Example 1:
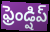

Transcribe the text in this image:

ఫ్రెండ్షిప్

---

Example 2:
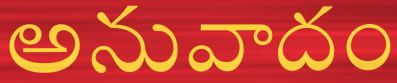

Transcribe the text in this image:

అనువాదం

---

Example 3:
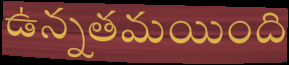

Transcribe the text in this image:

ఉన్నతమయింది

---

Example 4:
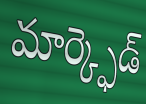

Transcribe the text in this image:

మార్క్ఫెడ్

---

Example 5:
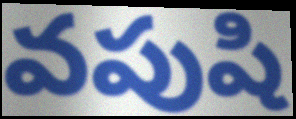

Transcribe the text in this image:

వపుషి